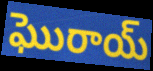
ఘొరాయ్